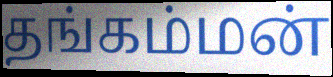
தங்கம்மன்